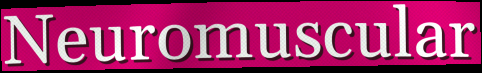
Neuromuscular